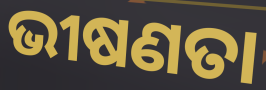
ଭୀଷଣତା